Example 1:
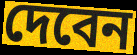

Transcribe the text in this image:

দেবেন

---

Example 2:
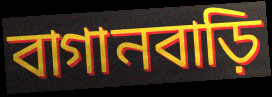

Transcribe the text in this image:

বাগানবাড়ি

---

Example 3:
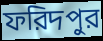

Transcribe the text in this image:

ফরিদপুর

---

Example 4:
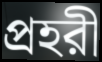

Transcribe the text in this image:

প্রহরী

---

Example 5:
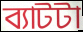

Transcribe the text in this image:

ব্যাটটা